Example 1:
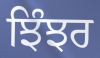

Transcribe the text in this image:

ਝਿੰਝਰ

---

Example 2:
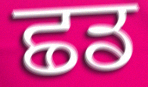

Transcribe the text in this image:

ਛਡ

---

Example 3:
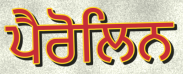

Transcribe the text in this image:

ਪੈਰੋਲਿਨ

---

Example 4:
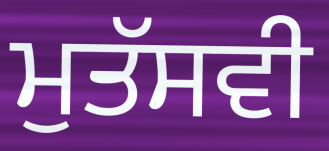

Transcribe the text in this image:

ਮੁਤੱਸਵੀ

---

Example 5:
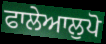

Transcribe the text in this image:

ਫਾਲੇਆਲੁਪੋ